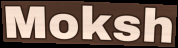
Moksh